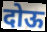
दोऊ